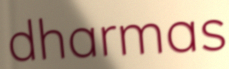
dharmas